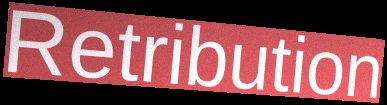
Retribution